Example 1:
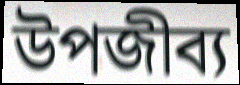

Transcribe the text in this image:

উপজীব্য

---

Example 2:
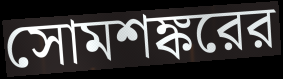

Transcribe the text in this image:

সোমশঙ্করের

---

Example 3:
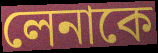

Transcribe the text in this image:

লেনাকে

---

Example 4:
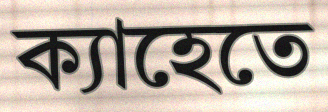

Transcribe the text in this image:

ক্যাহেতে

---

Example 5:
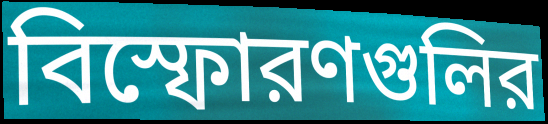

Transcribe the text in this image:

বিস্ফোরণগুলির